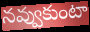
నవ్వుకుంటా